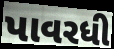
પાવરધી